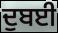
ਦੁਬਈ